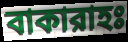
বাকারাহঃ